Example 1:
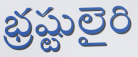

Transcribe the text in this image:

భ్రష్టులైరి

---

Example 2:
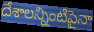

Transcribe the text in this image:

దేశాలన్నింటిపైనా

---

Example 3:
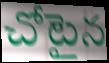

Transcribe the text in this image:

చోటైన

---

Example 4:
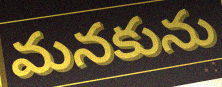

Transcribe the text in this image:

మనకును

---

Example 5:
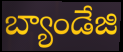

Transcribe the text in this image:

బ్యాండేజి